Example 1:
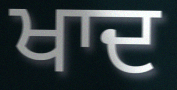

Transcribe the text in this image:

ਖਾਦ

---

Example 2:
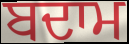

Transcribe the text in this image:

ਬਦਾਮ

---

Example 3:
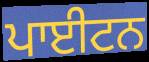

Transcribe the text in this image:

ਪਾਈਟਨ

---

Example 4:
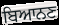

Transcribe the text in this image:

ਬਿਆਨਣ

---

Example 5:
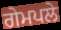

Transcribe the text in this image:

ਗੇਮਪਲੇ